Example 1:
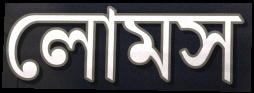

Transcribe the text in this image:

লোমস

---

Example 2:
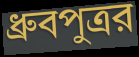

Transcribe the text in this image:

ধ্রুবপুত্রর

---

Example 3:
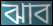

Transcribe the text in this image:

ঝাব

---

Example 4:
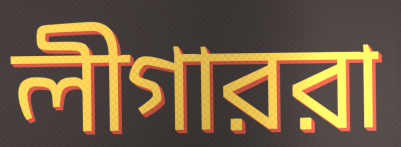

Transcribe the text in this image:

লীগাররা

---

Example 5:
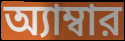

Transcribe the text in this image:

অ্যাম্বার